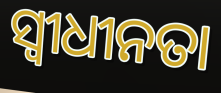
ସ୍ୱୀଧୀନତା